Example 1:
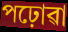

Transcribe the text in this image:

পঢ়োৱা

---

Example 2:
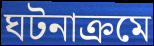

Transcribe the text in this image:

ঘটনাক্ৰমে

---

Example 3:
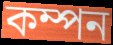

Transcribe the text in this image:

কম্পন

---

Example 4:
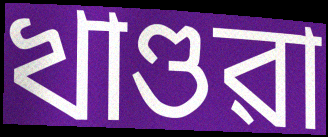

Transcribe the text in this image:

খাণ্ডৱা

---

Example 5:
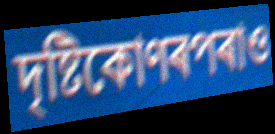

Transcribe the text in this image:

দৃষ্টিকোণৰপৰাও